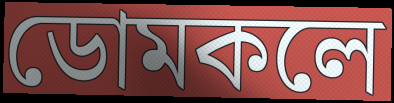
ডোমকলে